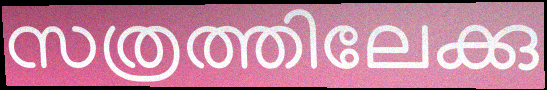
സത്രത്തിലേക്കു